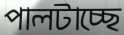
পালটাচ্ছে